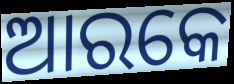
ଆରକେ